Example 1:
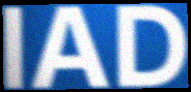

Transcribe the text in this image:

IAD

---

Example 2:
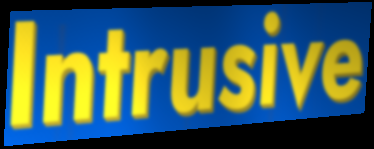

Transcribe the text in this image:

Intrusive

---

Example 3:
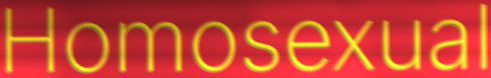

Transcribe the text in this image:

Homosexual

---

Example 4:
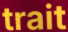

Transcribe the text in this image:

trait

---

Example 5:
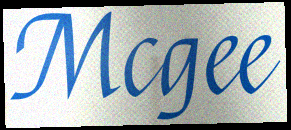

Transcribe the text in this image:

Mcgee